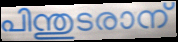
പിന്തുടരാന്